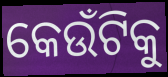
କେଉଁଟିକୁ